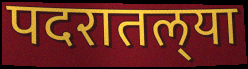
पदरातल्या